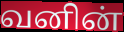
வனின்